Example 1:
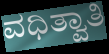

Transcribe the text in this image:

ವಧಿತ್ವಾತಿ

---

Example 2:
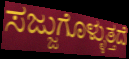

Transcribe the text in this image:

ಸಜ್ಜುಗೊಳ್ಳುತ್ತದೆ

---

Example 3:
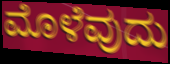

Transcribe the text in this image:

ಮೊಳೆವುದು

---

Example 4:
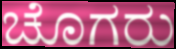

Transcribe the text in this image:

ಚೊಗರು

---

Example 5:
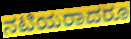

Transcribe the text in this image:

ನಟಿಯರಾದರೂ